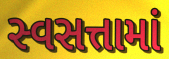
સ્વસત્તામાં